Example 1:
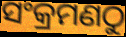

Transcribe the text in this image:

ସଂକ୍ରମଣଠୁ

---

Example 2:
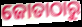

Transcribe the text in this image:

ଜୋତାଠାରୁ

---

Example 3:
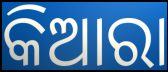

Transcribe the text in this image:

କିଆରା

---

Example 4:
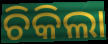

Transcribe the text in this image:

ଚିକିଲା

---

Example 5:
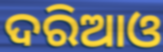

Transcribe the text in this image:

ଦରିଆଓ